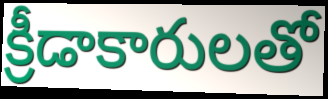
క్రీడాకారులతో